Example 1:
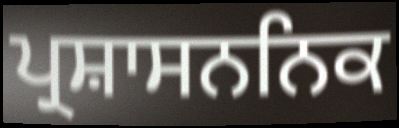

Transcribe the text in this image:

ਪ੍ਰਸ਼ਾਸਨਨਿਕ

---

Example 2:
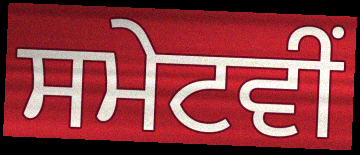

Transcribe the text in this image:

ਸਮੇਟਵੀਂ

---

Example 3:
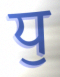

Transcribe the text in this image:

ਧੁ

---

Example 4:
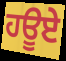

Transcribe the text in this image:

ਹਊਏ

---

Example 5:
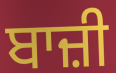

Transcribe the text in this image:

ਬਾਜ਼ੀ